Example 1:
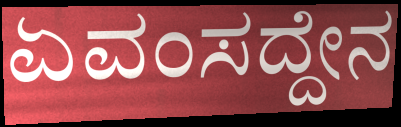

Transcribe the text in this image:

ಏವಂಸದ್ದೇನ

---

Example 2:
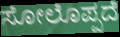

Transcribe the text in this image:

ಸೋಲೊಪ್ಪದೆ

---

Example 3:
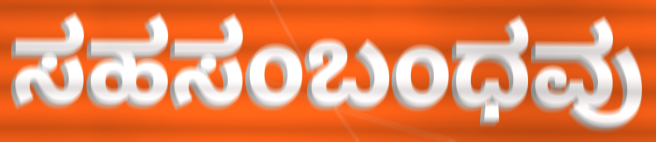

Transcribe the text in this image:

ಸಹಸಂಬಂಧವು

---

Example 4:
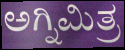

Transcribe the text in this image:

ಅಗ್ನಿಮಿತ್ರ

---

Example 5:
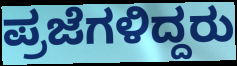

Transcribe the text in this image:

ಪ್ರಜೆಗಳಿದ್ದರು